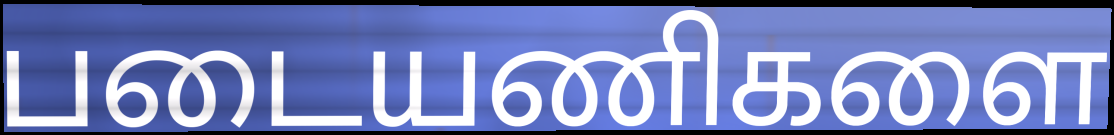
படையணிகளை